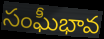
సంఘీభావ